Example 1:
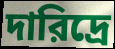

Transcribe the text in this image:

দারিদ্রে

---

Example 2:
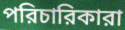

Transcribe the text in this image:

পরিচারিকারা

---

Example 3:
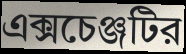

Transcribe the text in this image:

এক্সচেঞ্জটির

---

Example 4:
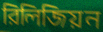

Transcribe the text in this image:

রিলিজিয়ন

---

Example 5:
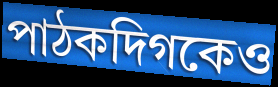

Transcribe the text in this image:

পাঠকদিগকেও